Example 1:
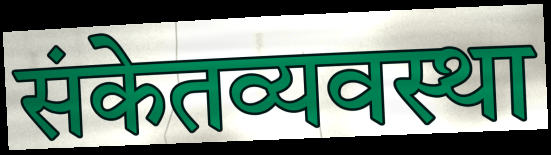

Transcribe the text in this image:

संकेतव्यवस्था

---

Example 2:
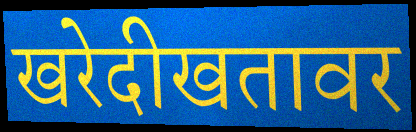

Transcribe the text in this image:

खरेदीखतावर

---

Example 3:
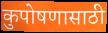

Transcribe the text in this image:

कुपोषणासाठी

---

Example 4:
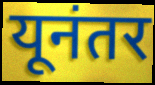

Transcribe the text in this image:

यूनंतर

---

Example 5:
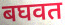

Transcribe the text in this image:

बघवत